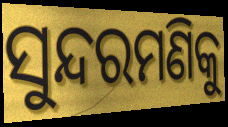
ସୁନ୍ଦରମଣିକୁ